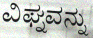
ವಿಘ್ನವನ್ನು